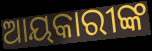
ଆୟକାରୀଙ୍କ